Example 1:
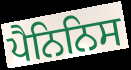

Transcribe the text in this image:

ਪੈਨਿਨਿਸ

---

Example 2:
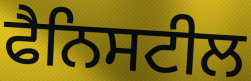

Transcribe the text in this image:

ਫੈਨਿਸਟੀਲ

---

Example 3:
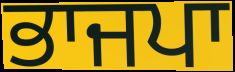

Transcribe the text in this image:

ਭਾਜਪਾ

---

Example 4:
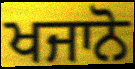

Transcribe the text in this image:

ਖਜਾਨੋ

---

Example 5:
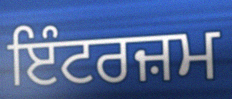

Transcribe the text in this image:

ਇੰਟਰਜ਼ਮ